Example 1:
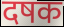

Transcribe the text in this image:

दषक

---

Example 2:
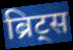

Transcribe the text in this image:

ब्रिट्स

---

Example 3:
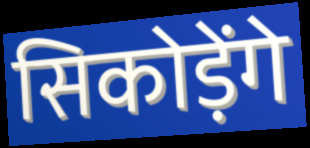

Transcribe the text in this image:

सिकोड़ेंगे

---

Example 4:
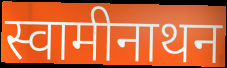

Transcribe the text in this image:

स्वामीनाथन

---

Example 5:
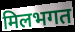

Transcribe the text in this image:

मिलभगत